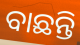
ବାଛନ୍ତି